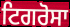
ਟਿਗਰੋਸਾ